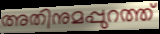
അതിനുമപ്പുറത്ത്